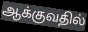
ஆக்குவதில்